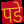
पडे